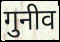
गुनीव